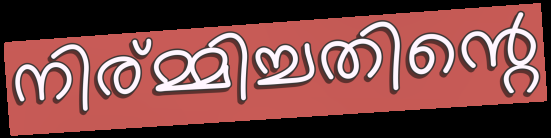
നിര്മ്മിച്ചതിന്റെ